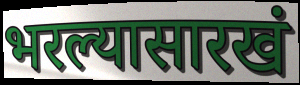
भरल्यासारखं